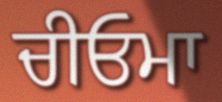
ਚੀਓਮਾ